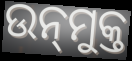
ଉନ୍‍ମୁକ୍ତ